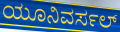
ಯೂನಿವರ್ಸಲ್